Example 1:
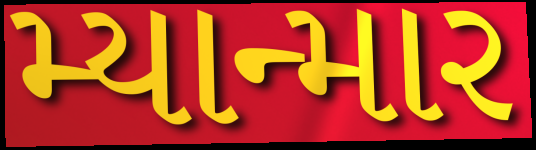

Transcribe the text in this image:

મ્યાન્માર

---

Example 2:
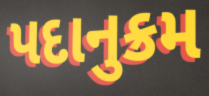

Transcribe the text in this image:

પદાનુક્રમ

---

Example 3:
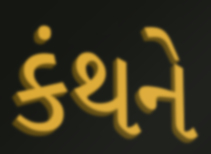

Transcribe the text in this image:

કંથને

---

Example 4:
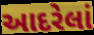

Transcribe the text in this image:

આદરેલાં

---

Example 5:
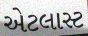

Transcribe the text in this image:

એટલાસ્ટ